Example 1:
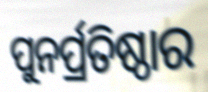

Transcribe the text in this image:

ପୁନର୍ପ୍ରତିଷ୍ଠାର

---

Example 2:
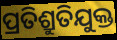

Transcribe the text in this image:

ପ୍ରତିଶ୍ରୁତିଯୁକ୍ତ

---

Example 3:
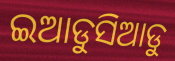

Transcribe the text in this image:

ଇଆଡୁସିଆଡୁ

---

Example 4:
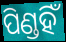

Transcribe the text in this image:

ପିଣ୍ଡହିଁ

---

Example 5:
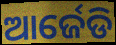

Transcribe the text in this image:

ଆର୍ଜେଡି